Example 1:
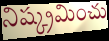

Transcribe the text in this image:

నిష్క్రమించు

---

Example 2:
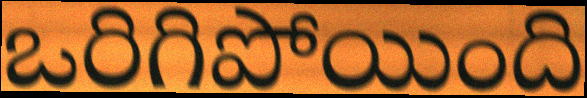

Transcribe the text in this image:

ఒరిగిపోయింది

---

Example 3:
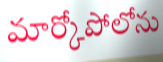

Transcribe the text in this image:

మార్కోపోలోను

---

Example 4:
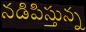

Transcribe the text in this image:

నడిపిస్తున్న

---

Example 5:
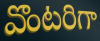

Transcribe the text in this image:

వొంటరిగా